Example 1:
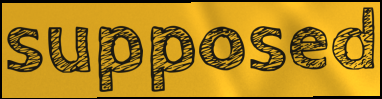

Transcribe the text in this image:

supposed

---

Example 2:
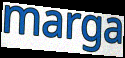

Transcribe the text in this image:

marga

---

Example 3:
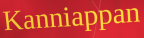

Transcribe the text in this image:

Kanniappan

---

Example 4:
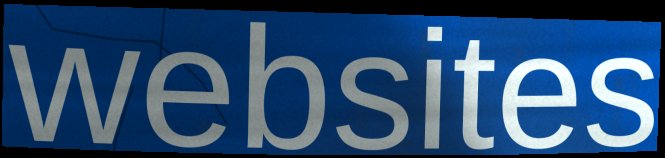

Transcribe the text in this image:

websites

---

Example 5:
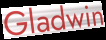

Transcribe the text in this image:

Gladwin